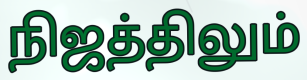
நிஜத்திலும்